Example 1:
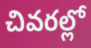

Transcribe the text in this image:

చివరల్లో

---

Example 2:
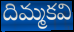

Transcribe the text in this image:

దిమ్మకవి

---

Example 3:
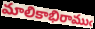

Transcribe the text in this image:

మాలికాభిరాముఁ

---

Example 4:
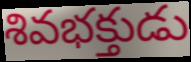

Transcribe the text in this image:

శివభక్తుడు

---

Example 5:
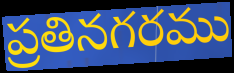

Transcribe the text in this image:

ప్రతినగరము